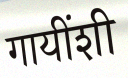
गायींशी